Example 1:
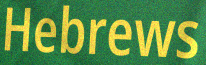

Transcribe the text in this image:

Hebrews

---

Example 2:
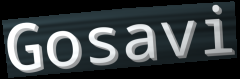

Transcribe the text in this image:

Gosavi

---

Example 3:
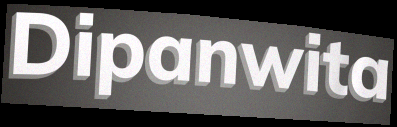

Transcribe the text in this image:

Dipanwita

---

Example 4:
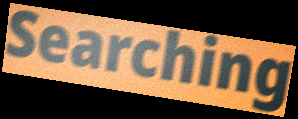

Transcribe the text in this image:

Searching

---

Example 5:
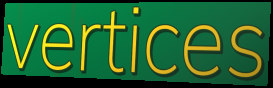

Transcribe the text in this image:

vertices